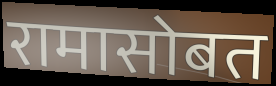
रामासोबत